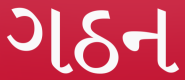
ગઠન